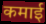
कमाई